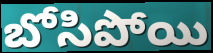
బోసిపోయి